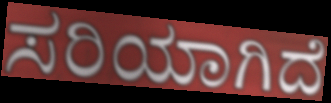
ಸರಿಯಾಗಿದೆ